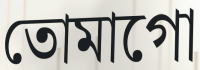
তোমাগো